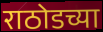
राठोडच्या